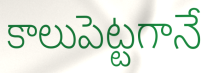
కాలుపెట్టగానే